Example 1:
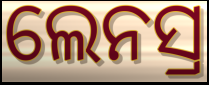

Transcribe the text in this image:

ଲେନସ୍ର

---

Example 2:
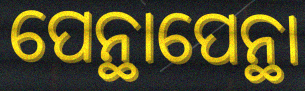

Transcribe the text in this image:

ପେନ୍ଥାପେନ୍ଥା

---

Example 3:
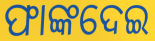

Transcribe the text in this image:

ଫାଙ୍କଦେଇ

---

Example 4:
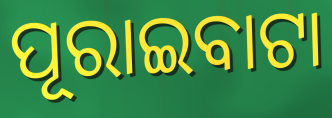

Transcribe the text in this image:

ପୂରାଇବାଟା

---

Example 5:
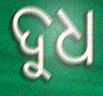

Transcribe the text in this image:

ଦୁଧ